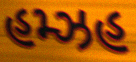
હમ્ઝહ